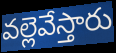
వల్లెవేస్తారు